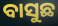
ବାସୁଛ